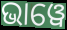
ଭାୱେ